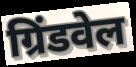
ग्रिंडवेल